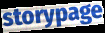
storypage